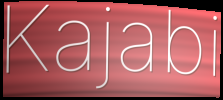
Kajabi